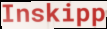
Inskipp